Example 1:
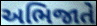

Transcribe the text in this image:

અભિજાતે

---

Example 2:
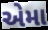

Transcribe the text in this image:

એમા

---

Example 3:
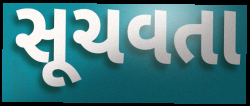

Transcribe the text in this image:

સૂચવતા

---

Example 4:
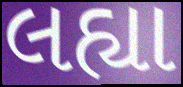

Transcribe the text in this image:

લહ્યા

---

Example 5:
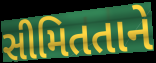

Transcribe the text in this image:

સીમિતતાને